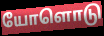
யோளொடு